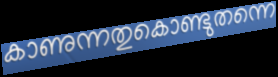
കാണുന്നതുകൊണ്ടുതന്നെ